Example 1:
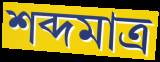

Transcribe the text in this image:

শব্দমাত্র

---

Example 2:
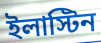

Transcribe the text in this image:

ইলাস্টিন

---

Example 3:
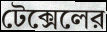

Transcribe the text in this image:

টেক্সেলের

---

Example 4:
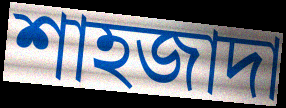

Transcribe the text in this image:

শাহজাদা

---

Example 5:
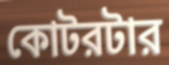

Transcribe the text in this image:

কোটরটার